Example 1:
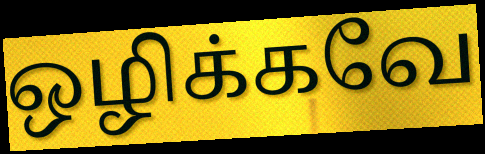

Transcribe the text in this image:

ஒழிக்கவே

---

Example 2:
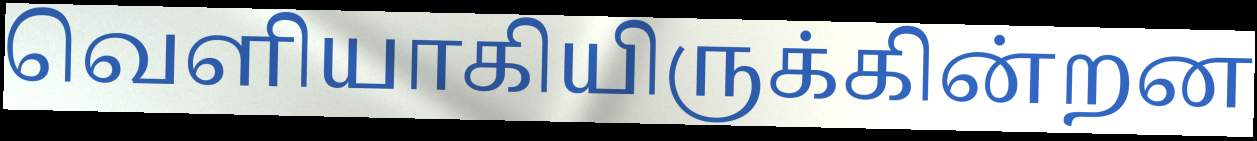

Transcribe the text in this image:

வெளியாகியிருக்கின்றன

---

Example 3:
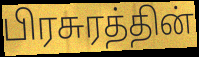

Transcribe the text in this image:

பிரசுரத்தின்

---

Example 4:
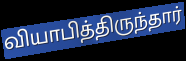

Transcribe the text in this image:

வியாபித்திருந்தார்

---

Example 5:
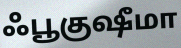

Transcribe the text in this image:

ஃபூகுஷீமா